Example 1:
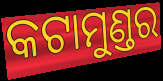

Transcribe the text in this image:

କଟାମୁଣ୍ଡର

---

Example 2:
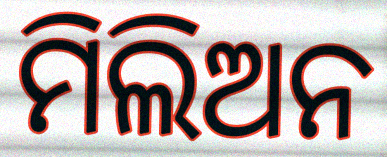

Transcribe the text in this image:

ମିଲିଅନ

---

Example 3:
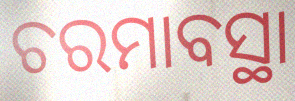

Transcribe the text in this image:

ଚରମାବସ୍ଥା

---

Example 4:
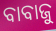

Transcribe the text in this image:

ବାବାଜୁ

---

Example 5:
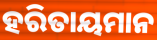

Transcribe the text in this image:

ହରିତାୟମାନ